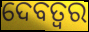
ଦେବତ୍ଵର